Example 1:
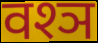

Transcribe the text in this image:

वश्ञ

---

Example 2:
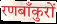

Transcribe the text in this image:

रणबाँकुरों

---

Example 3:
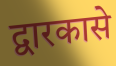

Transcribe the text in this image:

द्वारकासे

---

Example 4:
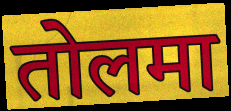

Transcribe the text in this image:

तोलमा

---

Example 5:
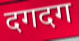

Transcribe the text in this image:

दगदग